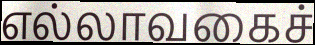
எல்லாவகைச்